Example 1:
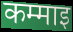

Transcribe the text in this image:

कम्माइ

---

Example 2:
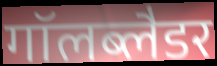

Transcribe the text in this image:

गॉलब्लैडर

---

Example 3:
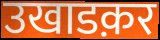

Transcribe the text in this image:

उखाडक़र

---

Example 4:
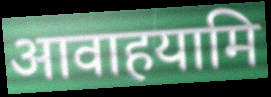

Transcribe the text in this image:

आवाहयामि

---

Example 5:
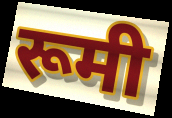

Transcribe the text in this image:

रूमी